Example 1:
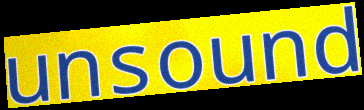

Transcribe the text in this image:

unsound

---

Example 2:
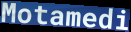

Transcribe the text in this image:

Motamedi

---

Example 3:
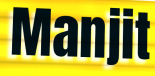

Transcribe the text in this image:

Manjit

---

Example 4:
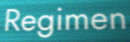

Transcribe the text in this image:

Regimen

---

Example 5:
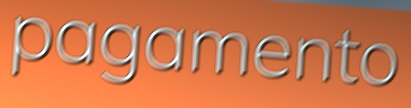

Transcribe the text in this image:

pagamento